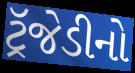
ટ્રૅજેડીનો